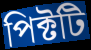
পিক্টটি